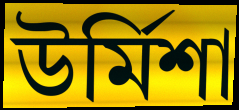
উর্মিশা